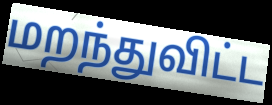
மறந்துவிட்ட